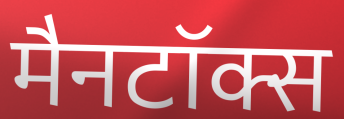
मैनटॉक्स